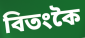
বিতংকৈ